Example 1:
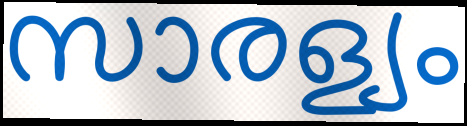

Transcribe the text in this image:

സാരള്യം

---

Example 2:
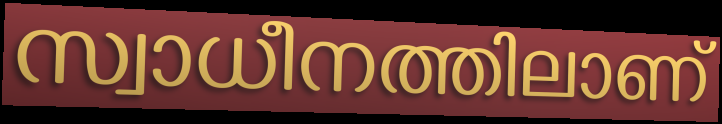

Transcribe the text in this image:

സ്വാധീനത്തിലാണ്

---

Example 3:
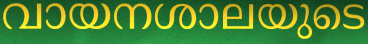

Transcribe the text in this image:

വായനശാലയുടെ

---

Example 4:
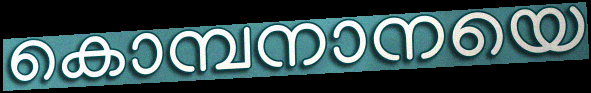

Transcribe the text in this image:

കൊമ്പനാനയെ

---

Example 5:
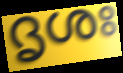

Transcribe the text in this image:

ദൃശഃ